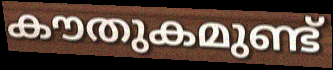
കൗതുകമുണ്ട്